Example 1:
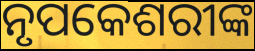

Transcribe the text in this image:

ନୃପକେଶରୀଙ୍କ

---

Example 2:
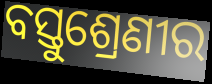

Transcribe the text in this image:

ବସ୍ତୁଶ୍ରେଣୀର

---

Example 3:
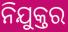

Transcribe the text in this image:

ନିଯୁକ୍ତର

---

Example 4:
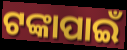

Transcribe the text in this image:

ଟଙ୍କାପାଇଁ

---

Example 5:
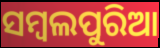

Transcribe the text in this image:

ସମ୍ବଲପୁରିଆ